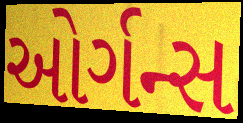
ઓર્ગન્સ